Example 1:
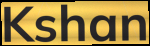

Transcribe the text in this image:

Kshan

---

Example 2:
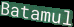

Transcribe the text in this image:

Batamul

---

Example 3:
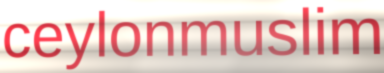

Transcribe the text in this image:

ceylonmuslim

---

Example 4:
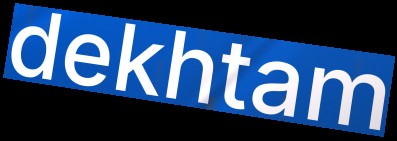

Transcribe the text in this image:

dekhtam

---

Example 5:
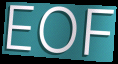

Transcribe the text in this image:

EOF